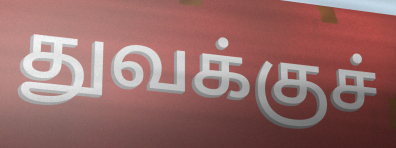
துவக்குச்